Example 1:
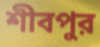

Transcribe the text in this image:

শীবপুর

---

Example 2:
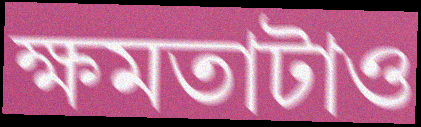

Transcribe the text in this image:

ক্ষমতাটাও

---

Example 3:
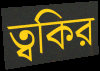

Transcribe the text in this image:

ত্বকির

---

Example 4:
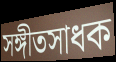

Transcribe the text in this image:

সঙ্গীতসাধক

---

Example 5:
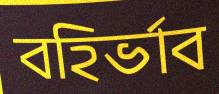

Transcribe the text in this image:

বহির্ভাব